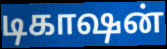
டிகாஷன்